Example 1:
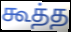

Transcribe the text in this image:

கூத்த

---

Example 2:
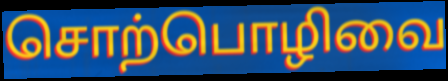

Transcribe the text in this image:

சொற்பொழிவை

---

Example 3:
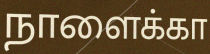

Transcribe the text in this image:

நாளைக்கா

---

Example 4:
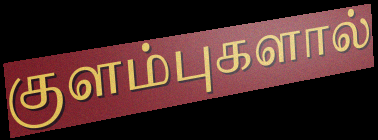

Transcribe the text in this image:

குளம்புகளால்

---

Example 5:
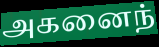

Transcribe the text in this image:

அகனைந்